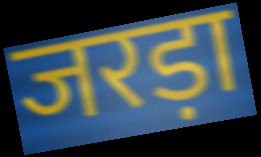
जरड़ा